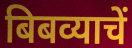
बिबव्याचें